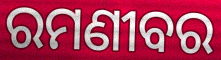
ରମଣୀବର